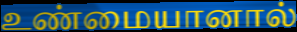
உண்மையானால்